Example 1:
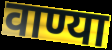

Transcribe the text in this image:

वाण्या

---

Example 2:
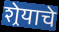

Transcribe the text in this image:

श्रेयाचे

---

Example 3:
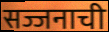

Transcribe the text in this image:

सज्जनाची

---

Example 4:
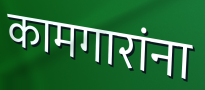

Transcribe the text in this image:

कामगारांना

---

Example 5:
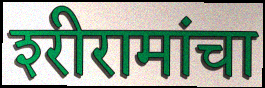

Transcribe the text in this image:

श्रीरामांचा